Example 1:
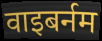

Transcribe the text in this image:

वाइबर्नम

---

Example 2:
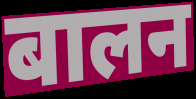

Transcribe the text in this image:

बालन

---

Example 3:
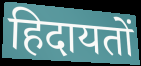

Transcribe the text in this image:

हिदायतों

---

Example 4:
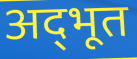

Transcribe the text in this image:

अद्भूत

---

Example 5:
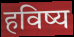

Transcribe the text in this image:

हविष्‍य